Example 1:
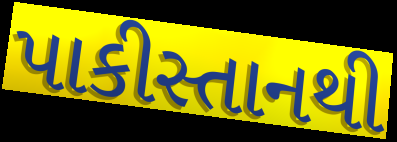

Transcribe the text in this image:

પાકીસ્તાનથી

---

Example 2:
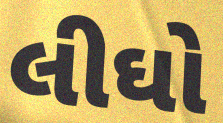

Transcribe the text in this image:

લીઘો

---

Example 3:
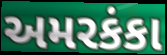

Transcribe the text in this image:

અમરકંકા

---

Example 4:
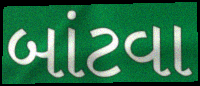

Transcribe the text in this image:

બાંટવા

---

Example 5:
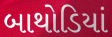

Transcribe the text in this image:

બાથોડિયાં